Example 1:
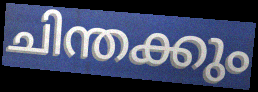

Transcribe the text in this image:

ചിന്തക്കും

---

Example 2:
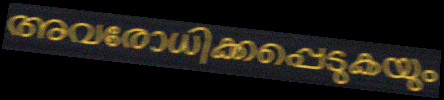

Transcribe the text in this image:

അവരോധിക്കപ്പെടുകയും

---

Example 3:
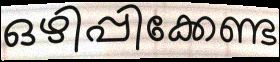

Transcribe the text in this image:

ഒഴിപ്പിക്കേണ്ട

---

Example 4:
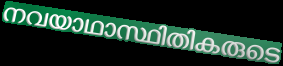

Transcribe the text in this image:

നവയാഥാസ്ഥിതികരുടെ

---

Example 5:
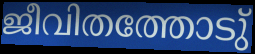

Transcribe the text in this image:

ജീവിതത്തോടു്